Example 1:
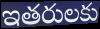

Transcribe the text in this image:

ఇతరులకు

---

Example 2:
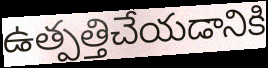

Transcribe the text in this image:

ఉత్పత్తిచేయడానికి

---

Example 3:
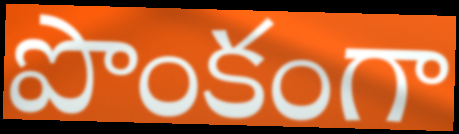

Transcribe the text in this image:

పొంకంగా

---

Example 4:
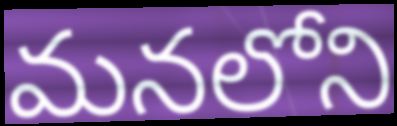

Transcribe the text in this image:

మనలోని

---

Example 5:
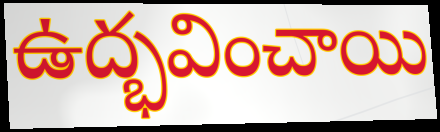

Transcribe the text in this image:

ఉద్భవించాయి